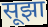
सूझा